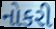
નોકરી